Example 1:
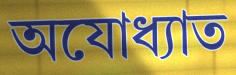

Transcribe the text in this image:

অযোধ্যাত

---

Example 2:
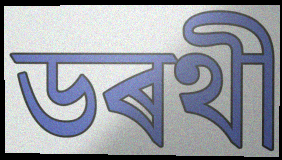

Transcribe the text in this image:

ডৰথী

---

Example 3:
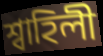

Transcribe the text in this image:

শ্বাহিলী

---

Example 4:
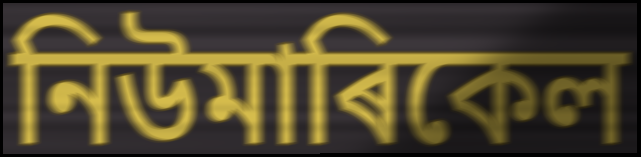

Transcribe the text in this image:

নিউমাৰিকেল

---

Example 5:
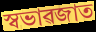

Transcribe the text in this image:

স্বভাৱজাত